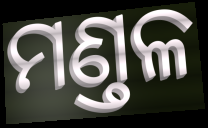
ମଣ୍ତଳ